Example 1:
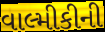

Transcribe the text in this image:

વાલ્મીકીની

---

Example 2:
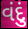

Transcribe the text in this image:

વંદું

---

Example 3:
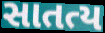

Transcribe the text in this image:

સાતત્ય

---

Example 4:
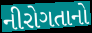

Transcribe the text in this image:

નીરોગતાનો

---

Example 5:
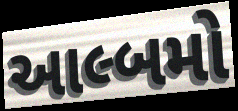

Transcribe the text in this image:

આલ્બમો